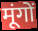
मूंगों